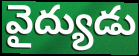
వైద్యుడు